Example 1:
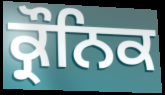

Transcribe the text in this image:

ਕ੍ਰੌਨਿਕ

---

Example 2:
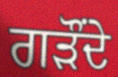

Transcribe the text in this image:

ਗੜੌਂਦੇ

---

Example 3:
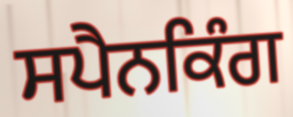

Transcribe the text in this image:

ਸਪੈਨਕਿੰਗ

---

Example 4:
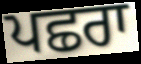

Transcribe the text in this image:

ਪਛਰਾ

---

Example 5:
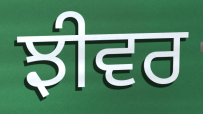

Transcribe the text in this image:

ਝੀਵਰ